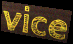
vice